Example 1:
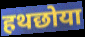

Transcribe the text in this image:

हथछोया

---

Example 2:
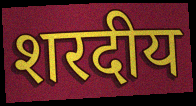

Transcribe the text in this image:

शरदीय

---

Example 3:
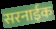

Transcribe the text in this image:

सरनाईक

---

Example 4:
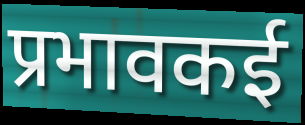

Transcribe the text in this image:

प्रभावकई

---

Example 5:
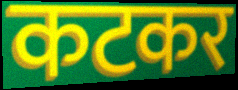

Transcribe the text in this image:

कटकर